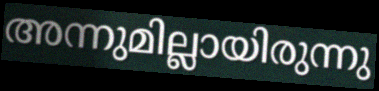
അന്നുമില്ലായിരുന്നു